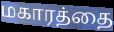
மகாரத்தை